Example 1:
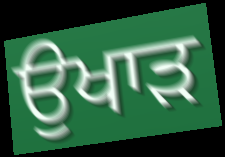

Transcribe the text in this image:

ਉਖਾੜ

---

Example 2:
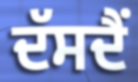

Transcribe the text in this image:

ਦੱਸਦੈਂ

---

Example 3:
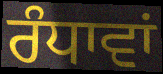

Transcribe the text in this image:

ਰੰਧਾਵਾਂ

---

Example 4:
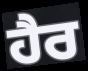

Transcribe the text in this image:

ਹੈਰ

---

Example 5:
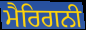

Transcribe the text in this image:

ਮੈਰਿਗਨੀ